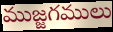
ముజ్జగములు